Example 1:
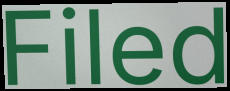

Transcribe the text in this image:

Filed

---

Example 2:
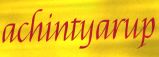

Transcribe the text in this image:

achintyarup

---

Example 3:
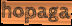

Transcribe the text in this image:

hopaga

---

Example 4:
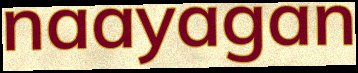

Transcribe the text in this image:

naayagan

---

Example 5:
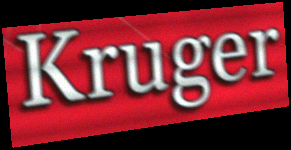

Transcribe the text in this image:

Kruger